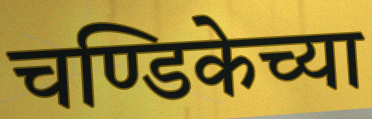
चण्डिकेच्या